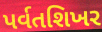
પર્વતશિખર